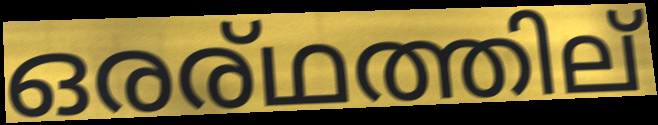
ഒരര്ഥത്തില്